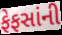
ફેફસાંની